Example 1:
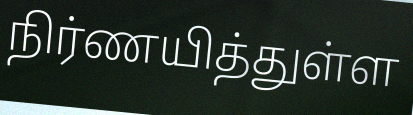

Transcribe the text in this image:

நிர்ணயித்துள்ள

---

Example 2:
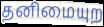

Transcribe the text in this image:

தனிமையுற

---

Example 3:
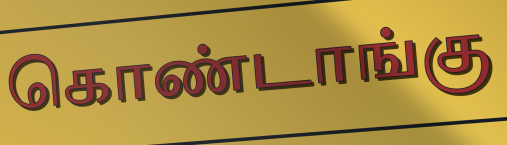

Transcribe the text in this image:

கொண்டாங்கு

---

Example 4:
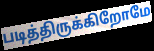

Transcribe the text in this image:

படித்திருக்கிறோமே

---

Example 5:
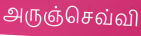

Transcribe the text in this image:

அருஞ்செவ்வி